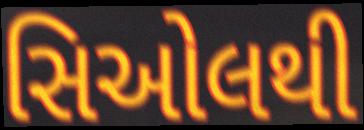
સિઓલથી